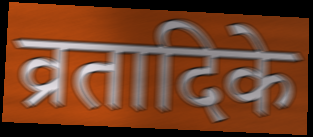
व्रतादिके